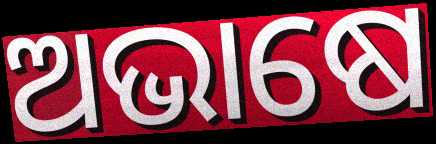
ଅଭାଷେ